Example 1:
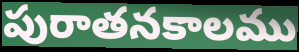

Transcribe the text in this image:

పురాతనకాలము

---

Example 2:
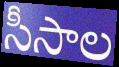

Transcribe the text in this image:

సీసాల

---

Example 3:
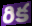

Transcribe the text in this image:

రిక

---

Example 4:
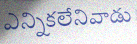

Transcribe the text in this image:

ఎన్నికలేనివాడు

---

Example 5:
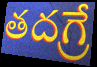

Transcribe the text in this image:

తదగ్రే